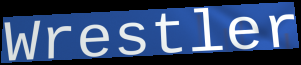
Wrestler